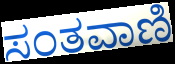
ಸಂತವಾಣಿ